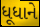
ધૂધાને